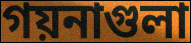
গয়নাগুলা